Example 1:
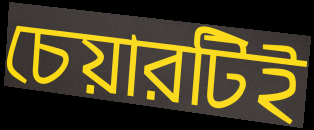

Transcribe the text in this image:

চেয়ারটিই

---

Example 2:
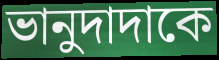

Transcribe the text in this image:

ভানুদাদাকে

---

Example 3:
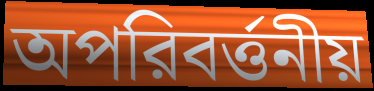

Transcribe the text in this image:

অপরিবর্ত্তনীয়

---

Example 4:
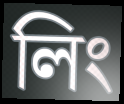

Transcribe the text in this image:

লিং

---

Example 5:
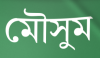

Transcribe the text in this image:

মৌসুম